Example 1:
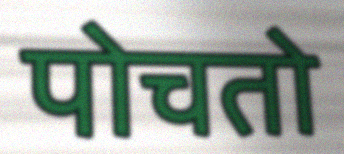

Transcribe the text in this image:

पोचतो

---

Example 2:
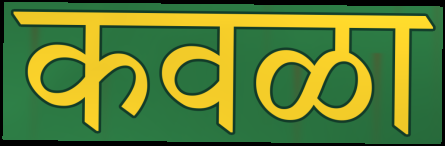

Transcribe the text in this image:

कवळा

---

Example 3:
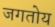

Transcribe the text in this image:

जगतोय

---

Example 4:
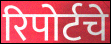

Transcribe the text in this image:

रिपोर्टचे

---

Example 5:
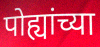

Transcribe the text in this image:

पोह्यांच्या